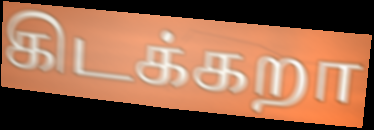
கிடக்கறா